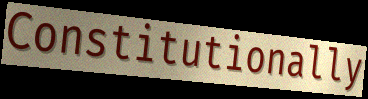
Constitutionally